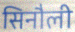
सिनौली